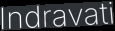
Indravati